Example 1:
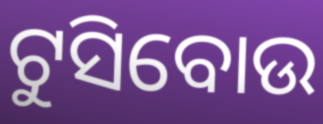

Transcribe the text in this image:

ଟୁସିବୋଉ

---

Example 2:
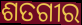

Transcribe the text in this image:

ଶତଗୀର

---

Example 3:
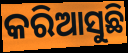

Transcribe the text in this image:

କରିଆସୁଛି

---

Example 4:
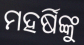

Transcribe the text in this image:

ମହର୍ଷିଙ୍କୁ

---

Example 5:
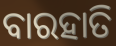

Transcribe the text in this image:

ବାରହାତି